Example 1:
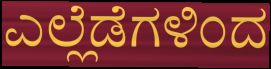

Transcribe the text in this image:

ಎಲ್ಲೆಡೆಗಳಿಂದ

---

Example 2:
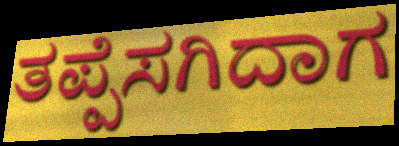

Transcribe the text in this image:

ತಪ್ಪೆಸಗಿದಾಗ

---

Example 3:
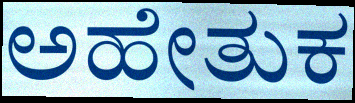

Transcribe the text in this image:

ಅಹೇತುಕ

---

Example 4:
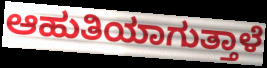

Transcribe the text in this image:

ಆಹುತಿಯಾಗುತ್ತಾಳೆ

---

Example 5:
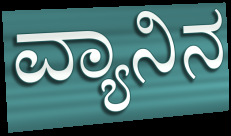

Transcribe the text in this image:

ವ್ಯಾನಿನ